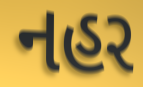
નહર